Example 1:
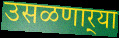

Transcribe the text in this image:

उसळणार्या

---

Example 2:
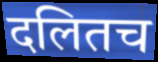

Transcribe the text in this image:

दलितच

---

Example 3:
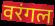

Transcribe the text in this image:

वरंगल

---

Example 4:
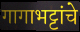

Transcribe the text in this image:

गागाभट्टांचे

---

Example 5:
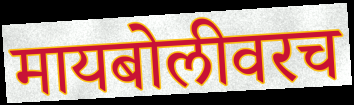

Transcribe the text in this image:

मायबोलीवरच